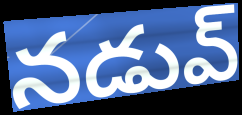
నడువ్